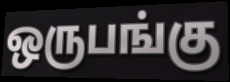
ஒருபங்கு